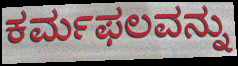
ಕರ್ಮಫಲವನ್ನು